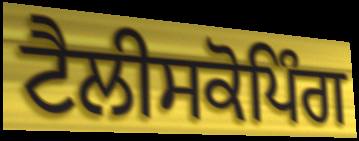
ਟੈਲੀਸਕੋਪਿੰਗ